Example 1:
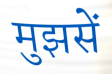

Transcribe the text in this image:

मुझसें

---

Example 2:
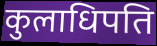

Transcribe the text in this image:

कुलाधिपति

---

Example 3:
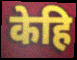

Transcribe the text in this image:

केहि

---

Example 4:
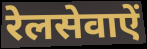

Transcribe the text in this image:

रेलसेवाऐं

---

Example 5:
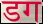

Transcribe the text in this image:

डग